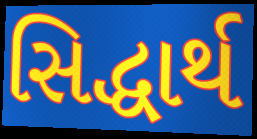
સિદ્ધાર્થ